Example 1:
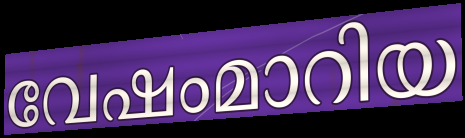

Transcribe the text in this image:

വേഷംമാറിയ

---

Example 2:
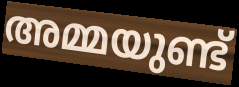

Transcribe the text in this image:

അമ്മയുണ്ട്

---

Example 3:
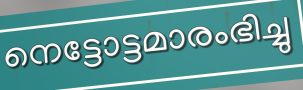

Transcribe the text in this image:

നെട്ടോട്ടമാരംഭിച്ചു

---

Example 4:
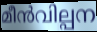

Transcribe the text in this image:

മീൻവില്പന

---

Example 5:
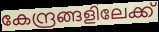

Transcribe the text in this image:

കേന്ദ്രങ്ങളിലേക്ക്